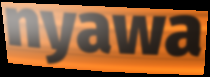
nyawa